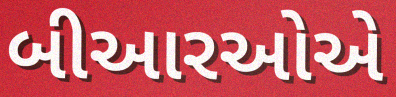
બીઆરઓએ